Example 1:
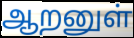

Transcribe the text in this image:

ஆறனுள்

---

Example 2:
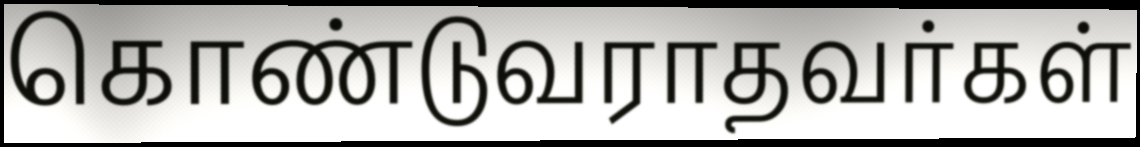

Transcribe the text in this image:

கொண்டுவராதவர்கள்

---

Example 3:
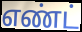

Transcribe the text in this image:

எண்ட்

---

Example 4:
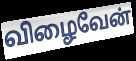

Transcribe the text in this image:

விழைவேன்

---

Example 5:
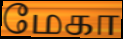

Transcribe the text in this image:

மேகா